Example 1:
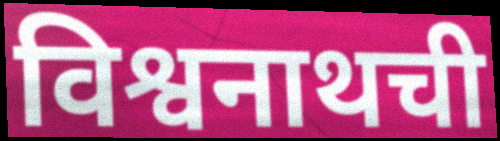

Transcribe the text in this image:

विश्वनाथची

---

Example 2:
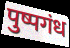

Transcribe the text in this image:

पुष्पगंध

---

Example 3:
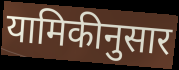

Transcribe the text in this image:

यामिकीनुसार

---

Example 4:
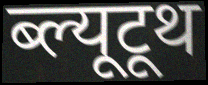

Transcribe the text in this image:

ब्ल्यूटूथ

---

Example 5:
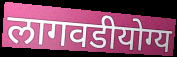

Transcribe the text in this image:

लागवडीयोग्य